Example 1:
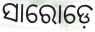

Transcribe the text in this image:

ସାରୋଡ଼େ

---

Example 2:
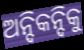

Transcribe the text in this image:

ଅନ୍ଦିକନ୍ଦିକୁ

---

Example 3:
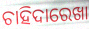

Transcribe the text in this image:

ଚାହିଦାରେଖା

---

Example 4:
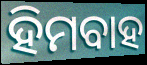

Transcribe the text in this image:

ହିମବାହ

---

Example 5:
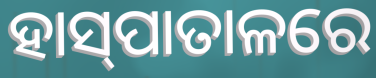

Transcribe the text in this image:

ହାସ୍‌ପାତାଳରେ